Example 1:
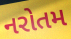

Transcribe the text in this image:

નરોતમ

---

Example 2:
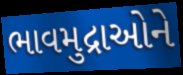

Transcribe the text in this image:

ભાવમુદ્રાઓને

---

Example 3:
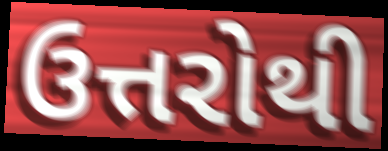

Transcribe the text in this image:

ઉત્તરોથી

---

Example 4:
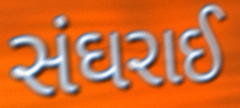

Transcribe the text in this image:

સંઘરાઈ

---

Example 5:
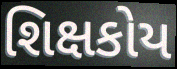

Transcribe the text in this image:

શિક્ષકોય